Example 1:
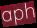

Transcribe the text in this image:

aph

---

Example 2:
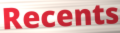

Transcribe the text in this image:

Recents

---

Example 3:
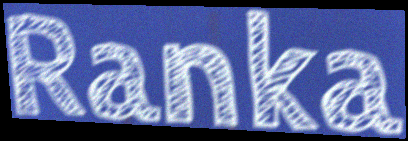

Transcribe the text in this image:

Ranka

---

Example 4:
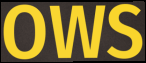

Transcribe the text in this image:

OWS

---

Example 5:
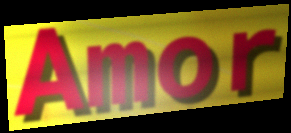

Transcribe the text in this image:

Amor